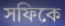
সফিকে